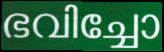
ഭവിച്ചോ